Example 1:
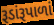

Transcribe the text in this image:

રૂડાંરૂપાળાં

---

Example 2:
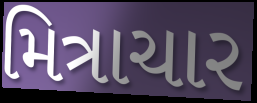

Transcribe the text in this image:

મિત્રાચાર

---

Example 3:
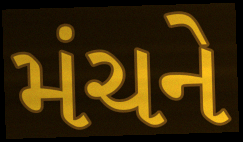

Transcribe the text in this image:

મંચને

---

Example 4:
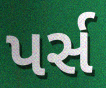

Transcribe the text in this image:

પર્સ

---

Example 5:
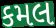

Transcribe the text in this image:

કમલ